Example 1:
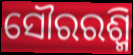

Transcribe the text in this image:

ସୌରରଶ୍ମି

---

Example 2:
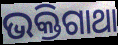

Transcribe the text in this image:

ଭକ୍ତିଗାଥା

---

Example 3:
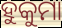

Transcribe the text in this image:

ହୁକୁମା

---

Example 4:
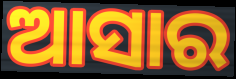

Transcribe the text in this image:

ଆସାର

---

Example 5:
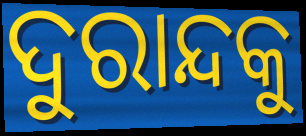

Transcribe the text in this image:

ଦୁରାନ୍ଦକୁ